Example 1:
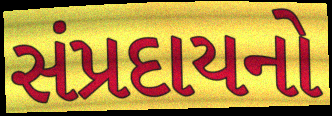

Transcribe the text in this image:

સંપ્રદાયનો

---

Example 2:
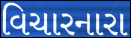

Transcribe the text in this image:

વિચારનારા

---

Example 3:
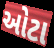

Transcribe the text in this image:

ઓટા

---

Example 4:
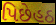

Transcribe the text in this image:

પિછેહઠ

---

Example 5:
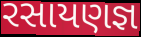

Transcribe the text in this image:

રસાયણજ્ઞ